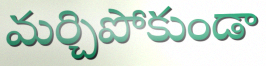
మర్చిపోకుండా